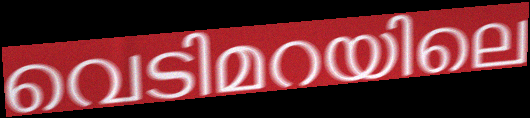
വെടിമറയിലെ